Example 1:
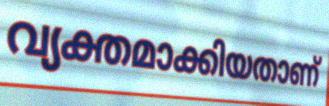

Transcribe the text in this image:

വ്യക്തമാക്കിയതാണ്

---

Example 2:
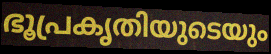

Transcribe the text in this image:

ഭൂപ്രകൃതിയുടെയും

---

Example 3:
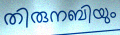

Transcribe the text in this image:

തിരുനബിയും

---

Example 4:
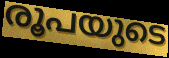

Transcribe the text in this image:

രൂപയുടെ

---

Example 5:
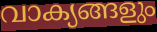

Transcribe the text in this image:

വാക്യങ്ങളും